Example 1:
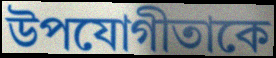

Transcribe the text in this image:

উপযোগীতাকে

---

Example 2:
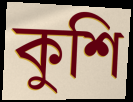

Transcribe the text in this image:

কুশি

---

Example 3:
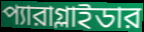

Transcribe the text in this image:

প্যারাগ্লাইডার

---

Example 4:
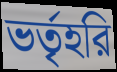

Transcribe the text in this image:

ভর্তৃহরি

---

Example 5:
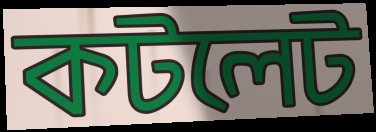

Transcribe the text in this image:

কটলেট